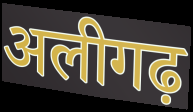
अलीगढ़